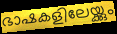
ഭാഷകളിലേയ്ക്കും